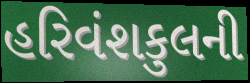
હરિવંશકુલની